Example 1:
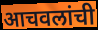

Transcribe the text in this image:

आचवलांची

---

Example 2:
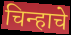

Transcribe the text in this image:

चिन्हाचे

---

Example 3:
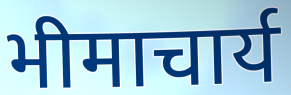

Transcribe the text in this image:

भीमाचार्य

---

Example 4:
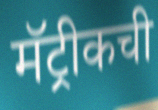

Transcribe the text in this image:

मॅट्रीकची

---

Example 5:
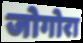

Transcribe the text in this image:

जोगोरा